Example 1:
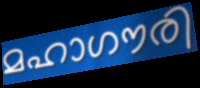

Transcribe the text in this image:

മഹാഗൗരി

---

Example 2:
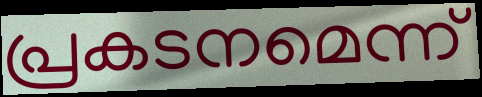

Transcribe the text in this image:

പ്രകടനമെന്ന്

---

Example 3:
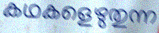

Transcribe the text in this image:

കഥകളെഴുതുന്ന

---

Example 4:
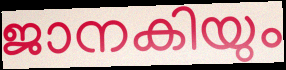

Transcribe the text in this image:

ജാനകിയും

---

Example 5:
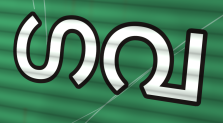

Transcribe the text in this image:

ഗവ